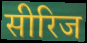
सीरिज